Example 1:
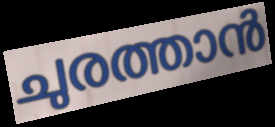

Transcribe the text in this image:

ചുരത്താൻ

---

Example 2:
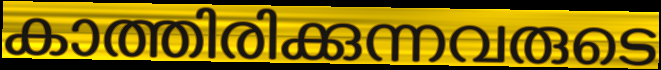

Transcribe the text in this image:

കാത്തിരിക്കുന്നവരുടെ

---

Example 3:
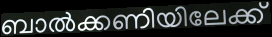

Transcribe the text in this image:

ബാൽക്കണിയിലേക്ക്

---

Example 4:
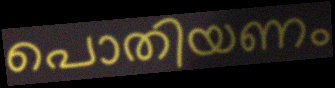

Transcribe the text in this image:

പൊതിയണം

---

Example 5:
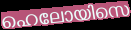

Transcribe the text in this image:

ഹെലോയിസെ